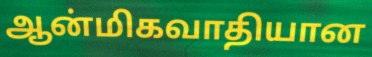
ஆன்மிகவாதியான